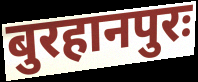
बुरहानपुरः